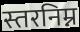
स्तरनिम्न